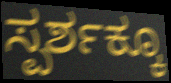
ಸ್ಪರ್ಶಕ್ಕೂ